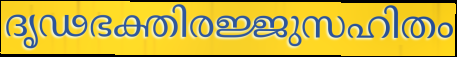
ദൃഢഭക്തിരജ്ജുസഹിതം